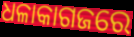
ଧଳାକାଗଜରେ